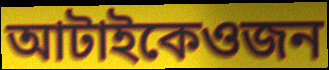
আটাইকেওজন